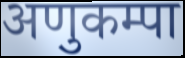
अणुकम्पा